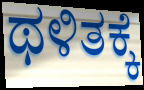
ಥಳಿತಕ್ಕೆ